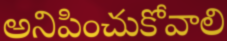
అనిపించుకోవాలి